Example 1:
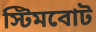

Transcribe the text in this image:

স্টিমবোট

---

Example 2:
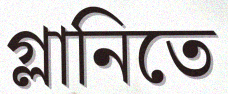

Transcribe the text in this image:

গ্লানিতে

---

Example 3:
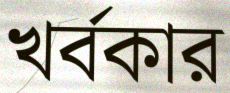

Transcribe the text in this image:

খর্বকার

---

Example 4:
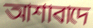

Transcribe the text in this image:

আশাবাদে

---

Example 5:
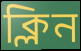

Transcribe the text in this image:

ক্লিন